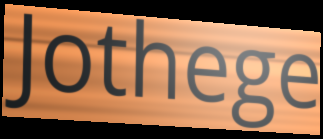
Jothege